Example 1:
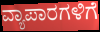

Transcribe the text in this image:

ವ್ಯಾಪಾರಗಳಿಗೆ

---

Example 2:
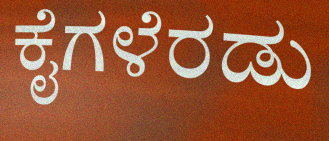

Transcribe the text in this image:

ಕೈಗಳೆರಡು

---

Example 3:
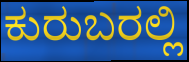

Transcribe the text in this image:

ಕುರುಬರಲ್ಲಿ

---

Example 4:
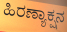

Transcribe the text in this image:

ಹಿರಣ್ಯಾಕ್ಷನ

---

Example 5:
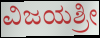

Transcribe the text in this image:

ವಿಜಯಶ್ರೀ